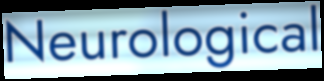
Neurological